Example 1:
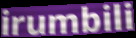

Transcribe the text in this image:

irumbili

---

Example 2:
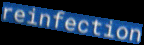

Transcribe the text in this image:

reinfection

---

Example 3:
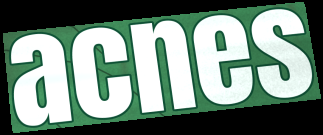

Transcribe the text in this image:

acnes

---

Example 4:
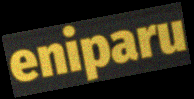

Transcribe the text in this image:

eniparu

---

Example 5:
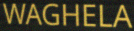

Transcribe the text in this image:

WAGHELA